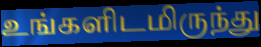
உங்களிடமிருந்து